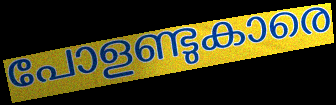
പോളണ്ടുകാരെ